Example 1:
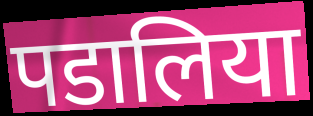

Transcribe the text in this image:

पडालिया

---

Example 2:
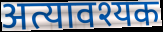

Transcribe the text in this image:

अत्यावश्यक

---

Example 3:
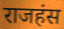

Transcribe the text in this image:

राजहंस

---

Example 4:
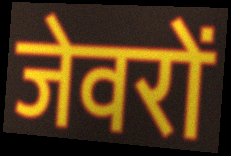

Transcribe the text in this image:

जेवरों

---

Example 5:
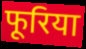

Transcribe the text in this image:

फूरिया